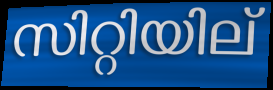
സിറ്റിയില്